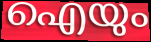
ഐയും